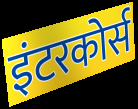
इंटरकोर्स